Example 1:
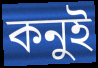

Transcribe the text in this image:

কনুই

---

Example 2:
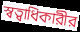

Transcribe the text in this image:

স্বত্বাধিকারীর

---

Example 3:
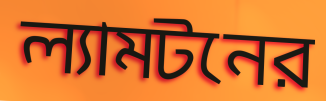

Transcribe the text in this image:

ল্যামটনের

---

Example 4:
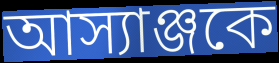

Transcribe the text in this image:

আস্যাঞ্জকে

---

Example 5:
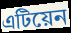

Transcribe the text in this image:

এটিয়েন